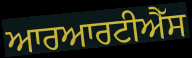
ਆਰਆਰਟੀਐੱਸ